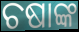
ଚଷାଙ୍କ